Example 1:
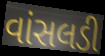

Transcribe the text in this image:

વાંસલડી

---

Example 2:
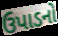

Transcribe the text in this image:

ઉપાડનો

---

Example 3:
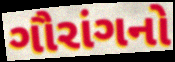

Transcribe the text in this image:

ગૌરાંગનો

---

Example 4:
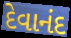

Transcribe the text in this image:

દેવાનંદ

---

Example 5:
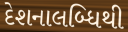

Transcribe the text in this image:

દેશનાલબ્ધિથી